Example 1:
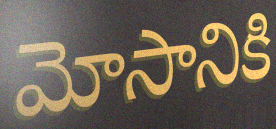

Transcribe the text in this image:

మోసానికి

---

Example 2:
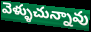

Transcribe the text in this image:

వెళ్ళుచున్నావు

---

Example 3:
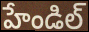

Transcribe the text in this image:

హేండిల్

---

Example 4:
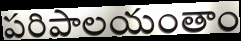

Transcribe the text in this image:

పరిపాలయంతాం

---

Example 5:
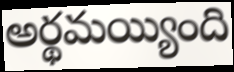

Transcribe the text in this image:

అర్థమయ్యింది